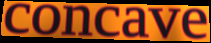
concave